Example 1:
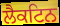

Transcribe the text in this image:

ਲੈਕਟਿਨ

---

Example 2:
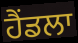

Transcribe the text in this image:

ਹੈਂਡਲਾ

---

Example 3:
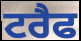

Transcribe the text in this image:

ਟਰੈਫ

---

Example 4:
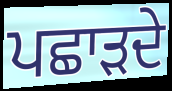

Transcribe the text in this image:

ਪਛਾੜਦੇ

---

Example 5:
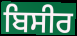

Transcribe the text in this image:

ਬਿਸੀਰ